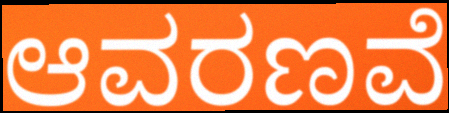
ಆವರಣವೆ